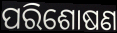
ପରିଶୋଷଣ